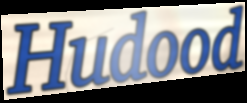
Hudood